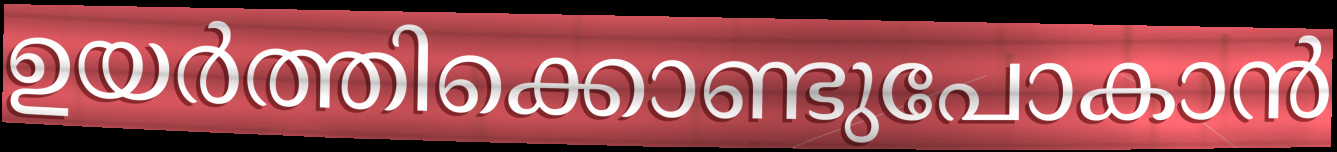
ഉയർത്തിക്കൊണ്ടുപോകാൻ